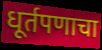
धूर्तपणाचा